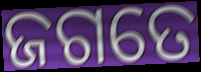
ଜଗତେ